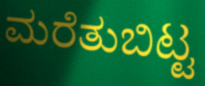
ಮರೆತುಬಿಟ್ಟ